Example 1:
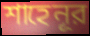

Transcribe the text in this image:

শাহেনূর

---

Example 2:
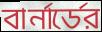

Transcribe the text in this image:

বার্নার্ডের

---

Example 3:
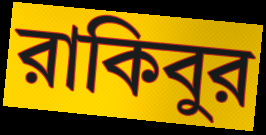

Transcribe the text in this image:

রাকিবুর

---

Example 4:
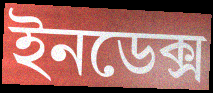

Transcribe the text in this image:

ইনডেক্স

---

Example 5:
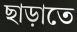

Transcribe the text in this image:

ছাড়াতে